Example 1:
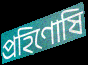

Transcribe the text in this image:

প্রহিণোষি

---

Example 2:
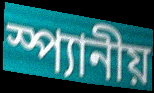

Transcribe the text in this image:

স্প্যানীয়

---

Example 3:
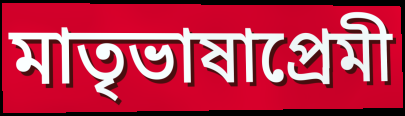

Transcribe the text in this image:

মাতৃভাষাপ্রেমী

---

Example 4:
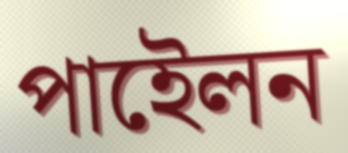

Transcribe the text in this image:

পাইেলন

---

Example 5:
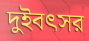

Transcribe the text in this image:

দুইবৎসর